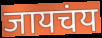
जायचंय